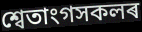
শ্বেতাংগসকলৰ